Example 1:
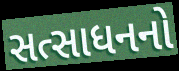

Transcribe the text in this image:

સત્સાધનનો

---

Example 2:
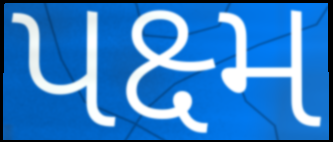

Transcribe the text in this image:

પક્ષ્મ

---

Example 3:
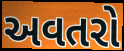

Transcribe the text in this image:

અવતરો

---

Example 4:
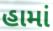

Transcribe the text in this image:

હામાં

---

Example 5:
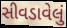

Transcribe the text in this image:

સીવડાવેલું